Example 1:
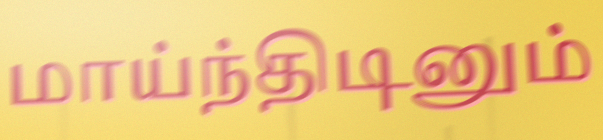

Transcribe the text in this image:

மாய்ந்திடினும்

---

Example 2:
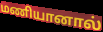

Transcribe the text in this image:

மணியானால்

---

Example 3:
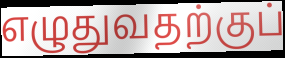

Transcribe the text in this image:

எழுதுவதற்குப்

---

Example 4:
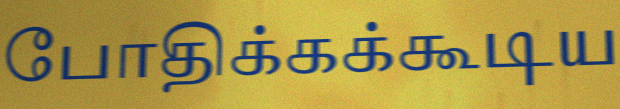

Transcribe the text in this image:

போதிக்கக்கூடிய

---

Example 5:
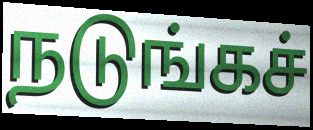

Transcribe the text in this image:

நடுங்கச்